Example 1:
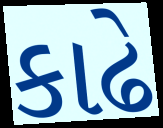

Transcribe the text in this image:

કાઢે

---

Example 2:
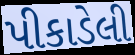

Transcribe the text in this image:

પીકાડેલી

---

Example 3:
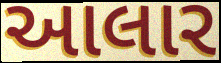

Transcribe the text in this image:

આલાર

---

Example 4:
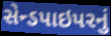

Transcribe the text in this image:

સેન્ડપાઇપરનું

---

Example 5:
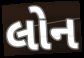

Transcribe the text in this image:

લોન